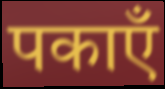
पकाएँ